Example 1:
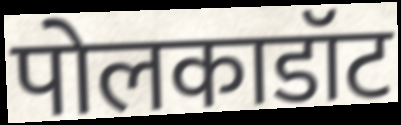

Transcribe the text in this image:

पोलकाडॉट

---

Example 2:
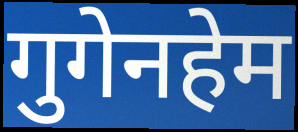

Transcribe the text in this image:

गुगेनहेम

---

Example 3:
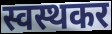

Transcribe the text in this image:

स्वस्थकर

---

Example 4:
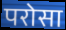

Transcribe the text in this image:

परोसा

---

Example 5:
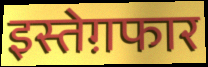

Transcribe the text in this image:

इस्तेग़फार